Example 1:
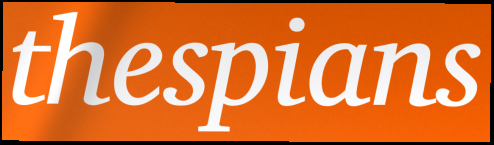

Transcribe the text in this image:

thespians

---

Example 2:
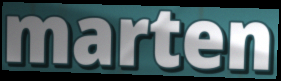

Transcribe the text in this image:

marten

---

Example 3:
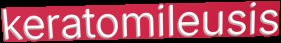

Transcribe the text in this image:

keratomileusis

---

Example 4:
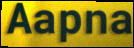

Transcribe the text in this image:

Aapna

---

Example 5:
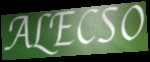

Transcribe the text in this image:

ALECSO